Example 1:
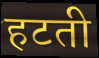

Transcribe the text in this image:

हटती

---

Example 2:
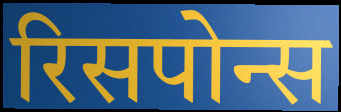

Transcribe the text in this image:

रिसपोन्स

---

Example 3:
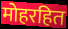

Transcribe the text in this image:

मोहरहित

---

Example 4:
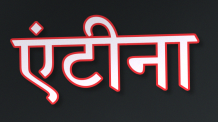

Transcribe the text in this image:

एंटीना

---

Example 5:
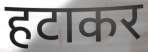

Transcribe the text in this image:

हटाकर